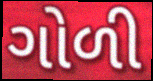
ગોળી